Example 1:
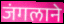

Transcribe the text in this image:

जंगलाने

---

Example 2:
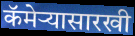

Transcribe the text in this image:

कॅमेऱ्यासारखी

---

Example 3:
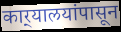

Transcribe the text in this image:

कार्यालयांपासून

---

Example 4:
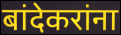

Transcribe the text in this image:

बांदेकरांना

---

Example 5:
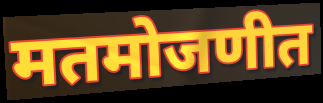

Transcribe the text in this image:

मतमोजणीत